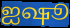
ஐஷூ